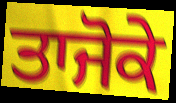
ਤਾਜੋਕੇ